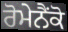
ਰੋਮੇਨੈਂਕੋ